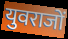
युवराजों